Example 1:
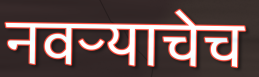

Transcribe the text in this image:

नवऱ्याचेच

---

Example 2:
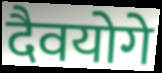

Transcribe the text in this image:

दैवयोगे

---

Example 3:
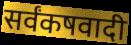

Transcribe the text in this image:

सर्वंकषवादी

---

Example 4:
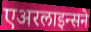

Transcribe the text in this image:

एअरलाइन्सने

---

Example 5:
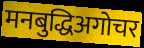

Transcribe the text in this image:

मनबुद्धिअगोचर